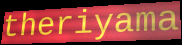
theriyama